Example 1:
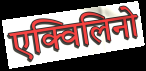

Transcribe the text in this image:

एक्विलिनो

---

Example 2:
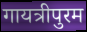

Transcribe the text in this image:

गायत्रीपुरम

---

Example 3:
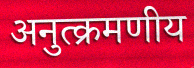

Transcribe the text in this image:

अनुत्क्रमणीय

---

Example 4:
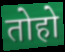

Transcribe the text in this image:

तोहो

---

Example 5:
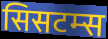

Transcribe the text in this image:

सिसटम्स